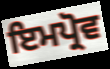
ਇਮਪ੍ਰੋਵ